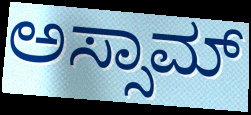
ಅಸ್ಸಾಮ್